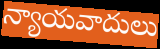
న్యాయవాదులు